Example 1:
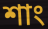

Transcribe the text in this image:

শাং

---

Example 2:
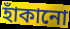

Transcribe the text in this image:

হাঁকানো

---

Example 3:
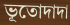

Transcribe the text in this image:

ভূতোদাদা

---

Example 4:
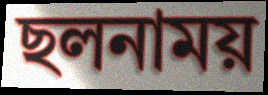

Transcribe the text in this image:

ছলনাময়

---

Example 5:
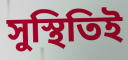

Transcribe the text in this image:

সুস্থিতিই